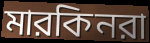
মারকিনরা